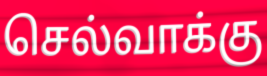
செல்வாக்கு